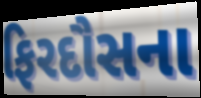
ફિરદૌસના